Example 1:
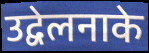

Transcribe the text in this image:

उद्वेलनाके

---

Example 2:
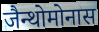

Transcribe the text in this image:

जैन्थोमोनास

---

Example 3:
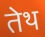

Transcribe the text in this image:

तेथ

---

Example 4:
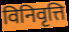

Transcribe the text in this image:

विनिवृत्ति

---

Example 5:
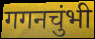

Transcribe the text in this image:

गगनचुंभी